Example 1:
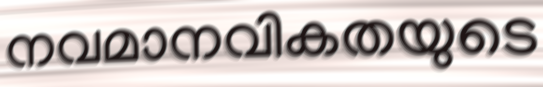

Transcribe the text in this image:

നവമാനവികതയുടെ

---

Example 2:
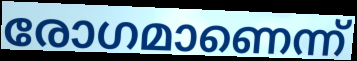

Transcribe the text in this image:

രോഗമാണെന്ന്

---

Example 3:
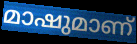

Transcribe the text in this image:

മാഷുമാണ്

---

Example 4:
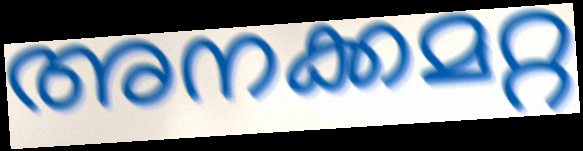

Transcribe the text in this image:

അനക്കമറ്റ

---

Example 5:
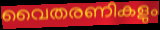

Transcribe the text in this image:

വൈതരണികളും